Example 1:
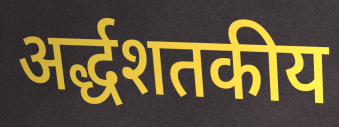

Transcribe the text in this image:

अर्द्धशतकीय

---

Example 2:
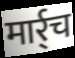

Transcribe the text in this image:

मार्र्च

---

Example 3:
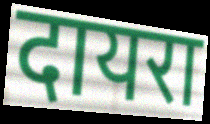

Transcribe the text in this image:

दायरा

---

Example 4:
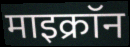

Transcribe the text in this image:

माइक्रॉन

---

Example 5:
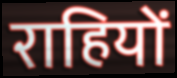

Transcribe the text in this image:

राहियों